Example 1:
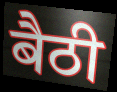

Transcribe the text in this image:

बैठी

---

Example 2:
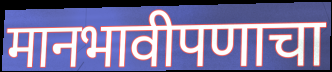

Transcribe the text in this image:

मानभावीपणाचा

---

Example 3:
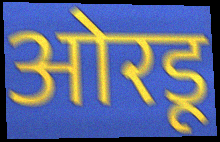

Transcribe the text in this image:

ओरडू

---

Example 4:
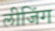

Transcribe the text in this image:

लीजिंग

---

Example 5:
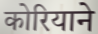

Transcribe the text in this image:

कोरियाने